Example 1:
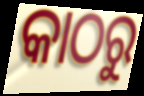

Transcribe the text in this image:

କାଠରୁ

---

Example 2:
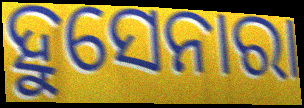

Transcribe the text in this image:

ହୁସେନାରା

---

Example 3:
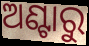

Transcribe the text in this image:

ଅଣ୍ଟାରୁ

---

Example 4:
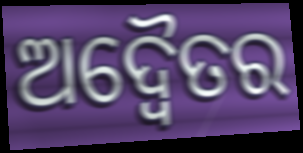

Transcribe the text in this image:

ଅଦ୍ଵୈତର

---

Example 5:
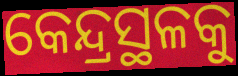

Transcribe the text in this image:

କେନ୍ଦ୍ରସ୍ଥଳକୁ